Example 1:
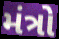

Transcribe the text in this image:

મંત્રો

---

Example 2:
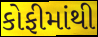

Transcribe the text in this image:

કોફીમાંથી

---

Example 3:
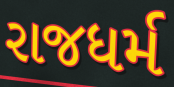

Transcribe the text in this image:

રાજધર્મ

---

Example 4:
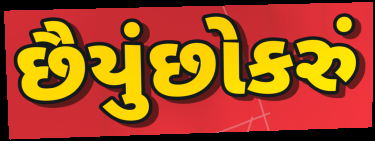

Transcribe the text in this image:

છૈયુંછોકરું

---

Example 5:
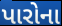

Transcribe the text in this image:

પારોના